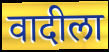
वादीला